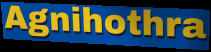
Agnihothra